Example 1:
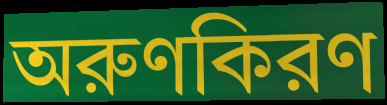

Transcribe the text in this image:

অরুণকিরণ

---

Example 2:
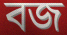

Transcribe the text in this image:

বজ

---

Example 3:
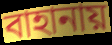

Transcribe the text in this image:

বাহানায়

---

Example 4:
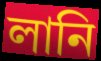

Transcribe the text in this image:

লানি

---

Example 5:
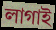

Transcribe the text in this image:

লাগাই